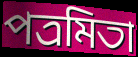
পত্রমিতা